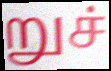
றுச்